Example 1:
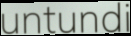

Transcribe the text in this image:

untundi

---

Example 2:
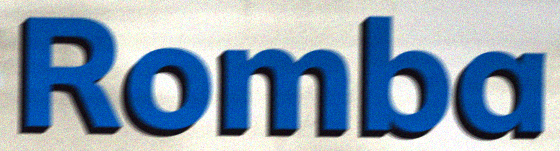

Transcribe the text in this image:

Romba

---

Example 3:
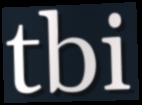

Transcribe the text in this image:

tbi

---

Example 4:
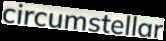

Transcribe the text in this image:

circumstellar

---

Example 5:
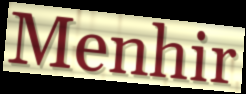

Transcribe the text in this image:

Menhir